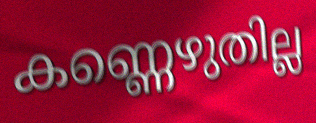
കണ്ണെഴുതില്ല